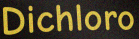
Dichloro